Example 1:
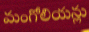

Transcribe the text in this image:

మంగోలియన్లు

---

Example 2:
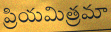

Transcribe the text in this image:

ప్రియమిత్రమా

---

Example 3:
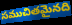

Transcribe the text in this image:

సముచితమైనది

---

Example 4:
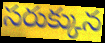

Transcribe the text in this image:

సరుక్కున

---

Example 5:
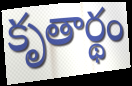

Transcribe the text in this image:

కృతార్థం